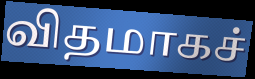
விதமாகச்